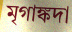
মৃগাঙ্কদা